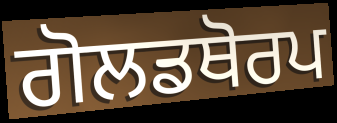
ਗੋਲਡਥੋਰਪ